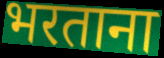
भरताना